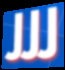
JJJ